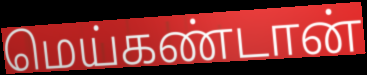
மெய்கண்டான்